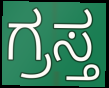
ಗ್ರಸ್ತ